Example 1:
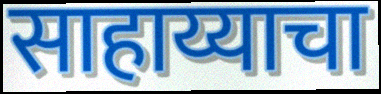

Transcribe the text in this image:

साहाय्याचा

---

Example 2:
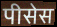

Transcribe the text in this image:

पीसेस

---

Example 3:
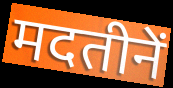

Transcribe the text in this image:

मदतीनें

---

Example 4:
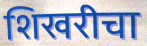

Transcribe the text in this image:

शिखरीचा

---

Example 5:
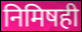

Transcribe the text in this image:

निमिषही